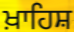
ਖ਼ਾਹਿਸ਼